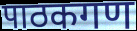
पाठकगण